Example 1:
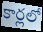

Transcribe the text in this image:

కార్లలో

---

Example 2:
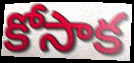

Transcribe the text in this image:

కోసాక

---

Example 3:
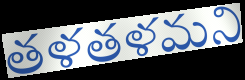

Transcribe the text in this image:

తళతళమని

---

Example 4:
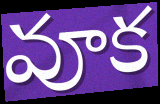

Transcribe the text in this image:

వూక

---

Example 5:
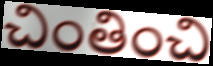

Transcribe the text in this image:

చింతించి